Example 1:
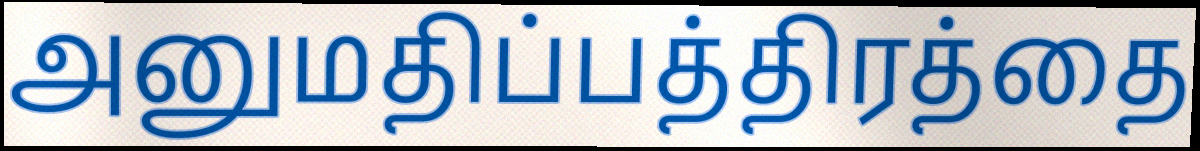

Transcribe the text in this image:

அனுமதிப்பத்திரத்தை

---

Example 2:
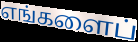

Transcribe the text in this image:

எங்களைப்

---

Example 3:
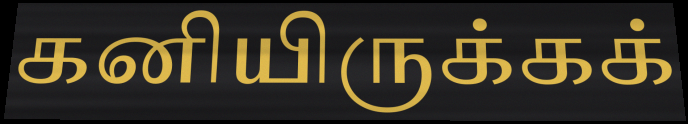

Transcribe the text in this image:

கனியிருக்கக்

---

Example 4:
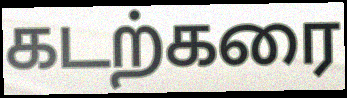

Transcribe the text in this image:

கடற்கரை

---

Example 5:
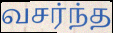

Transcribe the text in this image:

வசர்ந்த